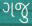
ગજુ